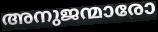
അനുജന്മാരോ